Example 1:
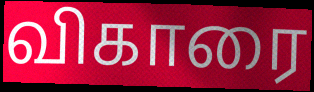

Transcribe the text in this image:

விகாரை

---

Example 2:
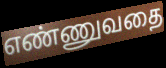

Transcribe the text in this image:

எண்ணுவதை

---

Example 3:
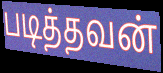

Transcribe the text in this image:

படித்தவன்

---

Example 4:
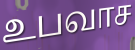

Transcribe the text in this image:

உபவாச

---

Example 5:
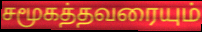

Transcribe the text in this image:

சமூகத்தவரையும்